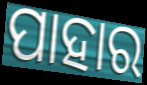
ପାହାର